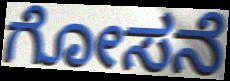
ಗೋಸನೆ